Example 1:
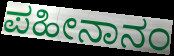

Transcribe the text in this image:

ಪಹೀನಾನಂ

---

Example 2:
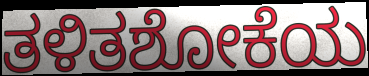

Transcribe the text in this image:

ತಳಿತಶೋಕೆಯ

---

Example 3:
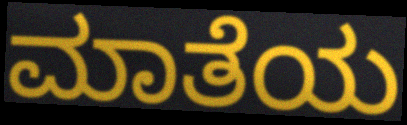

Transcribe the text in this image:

ಮಾತೆಯ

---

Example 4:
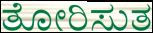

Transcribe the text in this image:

ತೋರಿಸುತ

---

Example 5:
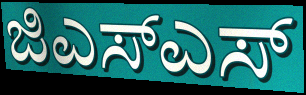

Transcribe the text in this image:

ಜಿಎಸ್ಎಸ್